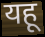
यहू